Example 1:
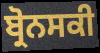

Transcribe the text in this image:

ਬ੍ਰੋਨਸਕੀ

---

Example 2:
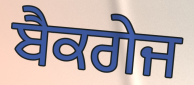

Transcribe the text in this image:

ਬੈਕਗੇਜ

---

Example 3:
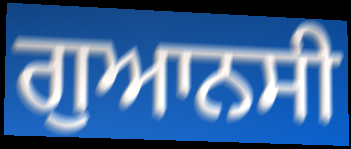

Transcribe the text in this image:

ਗੁਆਨਸੀ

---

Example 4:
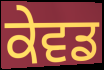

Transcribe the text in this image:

ਕੇਵਡ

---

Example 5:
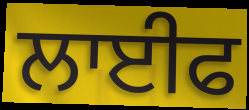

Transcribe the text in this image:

ਲਾਈਫ